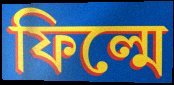
ফিল্মে